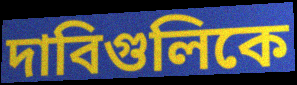
দাবিগুলিকে